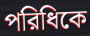
পরিধিকে